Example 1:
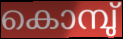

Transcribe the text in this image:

കൊമ്പു്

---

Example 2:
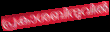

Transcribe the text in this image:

പ്രകാശബിന്ദുവിൽ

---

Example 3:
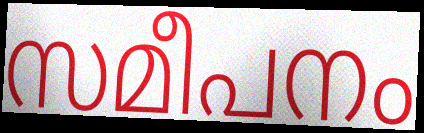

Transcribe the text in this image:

സമീപനം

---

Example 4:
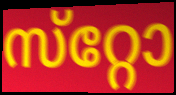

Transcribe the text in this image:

സ്‌റ്റോ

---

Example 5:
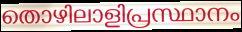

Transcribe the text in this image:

തൊഴിലാളിപ്രസ്ഥാനം